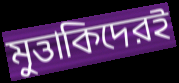
মুত্তাকিদেরই